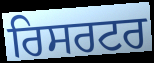
ਰਿਸਰਟਰ